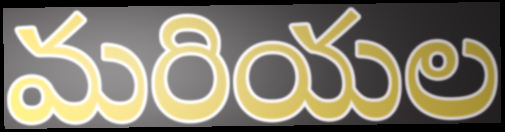
మరియల